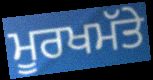
ਮੂਰਖਮੱਤੇ